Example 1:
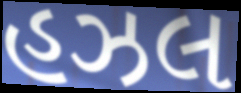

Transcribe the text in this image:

હઝલ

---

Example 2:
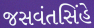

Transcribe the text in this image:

જસવંતસિંહે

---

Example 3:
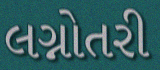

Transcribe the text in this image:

લગ્નોતરી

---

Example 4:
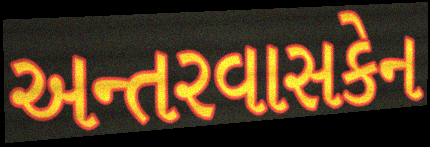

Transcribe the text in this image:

અન્તરવાસકેન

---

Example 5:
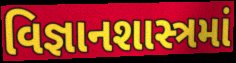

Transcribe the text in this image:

વિજ્ઞાનશાસ્ત્રમાં